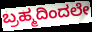
ಬ್ರಹ್ಮದಿಂದಲೇ